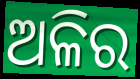
ଅଳିର